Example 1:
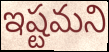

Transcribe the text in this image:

ఇష్టమని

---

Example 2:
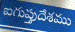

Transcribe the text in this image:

ఐగుప్తుదేశము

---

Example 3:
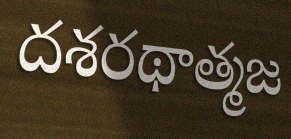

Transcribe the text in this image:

దశరథాత్మజ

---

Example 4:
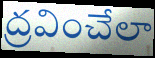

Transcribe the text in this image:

ద్రవించేలా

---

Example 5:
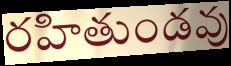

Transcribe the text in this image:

రహితుండవు